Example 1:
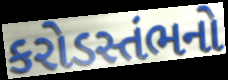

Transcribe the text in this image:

કરોડસ્તંભનો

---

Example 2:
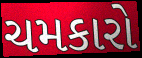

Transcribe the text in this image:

ચમકારો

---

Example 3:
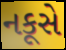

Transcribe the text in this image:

નકૂસે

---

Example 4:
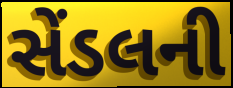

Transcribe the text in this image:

સેંડલની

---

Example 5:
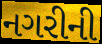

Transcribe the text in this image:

નગરીની